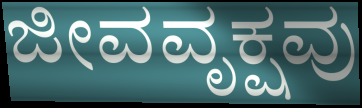
ಜೀವವೃಕ್ಷವು